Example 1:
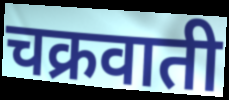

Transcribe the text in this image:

चक्रवाती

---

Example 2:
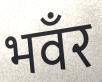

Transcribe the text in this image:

भवँर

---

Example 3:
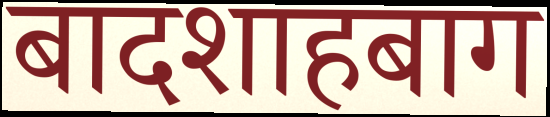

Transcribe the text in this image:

बादशाहबाग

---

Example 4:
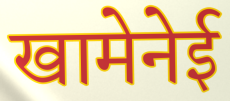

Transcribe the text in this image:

खामेनेई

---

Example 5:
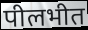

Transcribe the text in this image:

पीलभीत